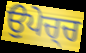
ਉਪੇਚ੍ਚ